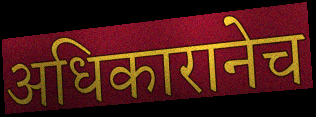
अधिकारानेच